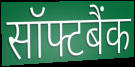
सॉफ्टबैंक